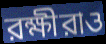
রক্ষীরাও